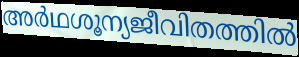
അർഥശൂന്യജീവിതത്തിൽ